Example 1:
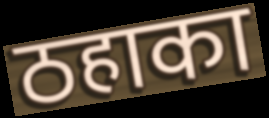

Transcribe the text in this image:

ठहाका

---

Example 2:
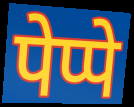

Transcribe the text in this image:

पेप्पे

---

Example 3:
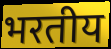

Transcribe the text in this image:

भरतीय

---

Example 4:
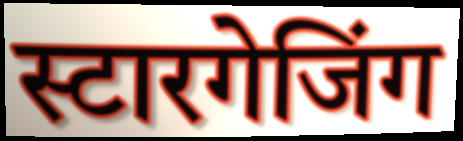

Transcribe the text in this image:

स्टारगेजिंग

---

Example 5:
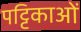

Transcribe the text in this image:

पट्टिकाओं